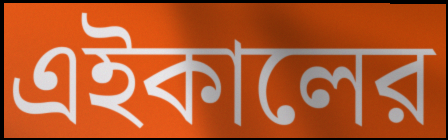
এইকালের